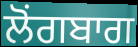
ਲੋਂਗਬਾਗ